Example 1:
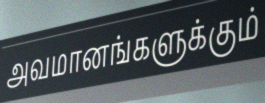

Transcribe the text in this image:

அவமானங்களுக்கும்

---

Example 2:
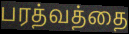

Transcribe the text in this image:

பரத்வத்தை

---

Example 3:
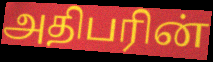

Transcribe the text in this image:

அதிபரின்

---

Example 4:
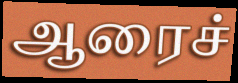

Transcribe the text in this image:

ஆரைச்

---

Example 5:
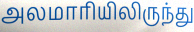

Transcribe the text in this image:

அலமாரியிலிருந்து